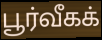
பூர்வீகக்